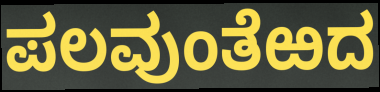
ಪಲವುಂತೆಱದ